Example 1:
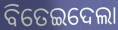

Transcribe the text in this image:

ବିତେଇଦେଲା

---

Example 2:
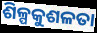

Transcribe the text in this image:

ଶିଳ୍ପକୁଶଳତା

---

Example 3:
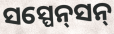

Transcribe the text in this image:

ସସ୍ପେନ୍‌ସନ୍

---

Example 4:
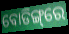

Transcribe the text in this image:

ବୋଡିଙ୍ଗ୍‌ରେ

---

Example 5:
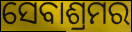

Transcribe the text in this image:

ସେବାଶ୍ରମର